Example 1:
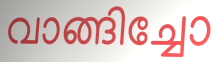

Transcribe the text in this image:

വാങ്ങിച്ചോ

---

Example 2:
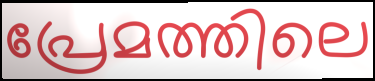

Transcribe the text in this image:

പ്രേമത്തിലെ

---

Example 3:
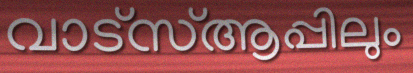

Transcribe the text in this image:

വാട്സ്ആപ്പിലും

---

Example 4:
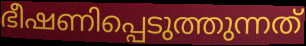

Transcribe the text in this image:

ഭീഷണിപ്പെടുത്തുന്നത്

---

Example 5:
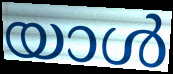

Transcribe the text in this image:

യാൾ